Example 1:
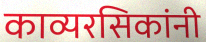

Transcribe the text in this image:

काव्यरसिकांनी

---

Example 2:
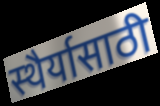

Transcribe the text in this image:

स्थैर्यासाठी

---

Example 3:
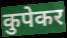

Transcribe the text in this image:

कुपेकर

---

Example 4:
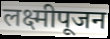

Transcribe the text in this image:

लक्ष्मीपूजन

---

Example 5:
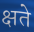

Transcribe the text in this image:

क्षते